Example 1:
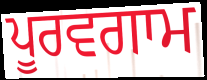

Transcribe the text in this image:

ਪੂਰਵਗਾਮ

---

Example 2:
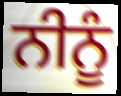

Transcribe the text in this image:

ਨੀਨੂੰ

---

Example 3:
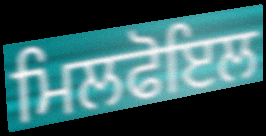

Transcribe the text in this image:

ਮਿਲਫੋਇਲ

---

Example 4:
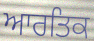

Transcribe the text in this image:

ਆਰਤਿਕ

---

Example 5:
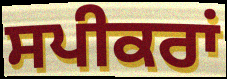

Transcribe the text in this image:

ਸਪੀਕਰਾਂ